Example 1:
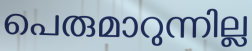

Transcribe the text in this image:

പെരുമാറുന്നില്ല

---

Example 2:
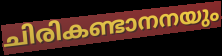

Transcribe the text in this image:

ചിരികണ്ടാനനയും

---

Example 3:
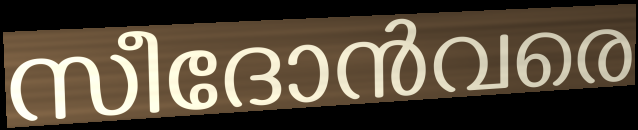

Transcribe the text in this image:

സീദോൻവരെ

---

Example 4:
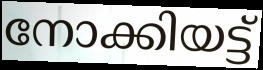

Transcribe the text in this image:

നോക്കിയട്ട്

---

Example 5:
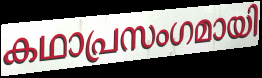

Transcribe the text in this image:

കഥാപ്രസംഗമായി